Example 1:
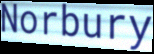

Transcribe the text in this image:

Norbury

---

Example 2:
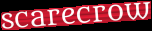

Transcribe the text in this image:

scarecrow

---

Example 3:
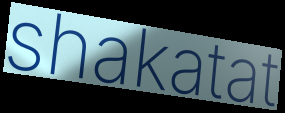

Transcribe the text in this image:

shakatat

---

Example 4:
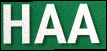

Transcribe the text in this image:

HAA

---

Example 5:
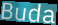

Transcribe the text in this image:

Buda